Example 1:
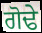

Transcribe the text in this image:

ਗੋਢੇ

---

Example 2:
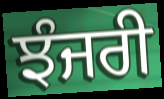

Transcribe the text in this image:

ਝੰਜਰੀ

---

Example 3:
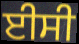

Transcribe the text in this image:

ਈਸੀ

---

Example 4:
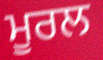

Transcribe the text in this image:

ਮੂਰਲ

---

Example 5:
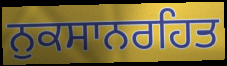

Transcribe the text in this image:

ਨੁਕਸਾਨਰਹਿਤ